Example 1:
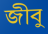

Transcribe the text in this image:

জীবু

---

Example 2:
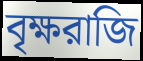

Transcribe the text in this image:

বৃক্ষরাজি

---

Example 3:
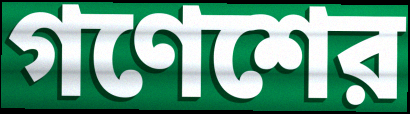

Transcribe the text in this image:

গণেশের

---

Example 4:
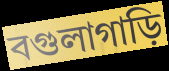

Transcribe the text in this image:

বগুলাগাড়ি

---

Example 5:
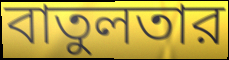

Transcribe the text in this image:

বাতুলতার